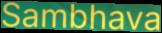
Sambhava